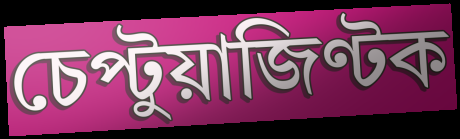
চেপ্টুয়াজিণ্টক